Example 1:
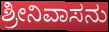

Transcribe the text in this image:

ಶ್ರೀನಿವಾಸನು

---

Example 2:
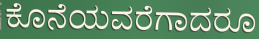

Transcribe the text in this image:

ಕೊನೆಯವರೆಗಾದರೂ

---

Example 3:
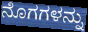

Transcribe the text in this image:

ನೊಗಗಳನ್ನು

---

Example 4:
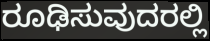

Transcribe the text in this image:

ರೂಢಿಸುವುದರಲ್ಲಿ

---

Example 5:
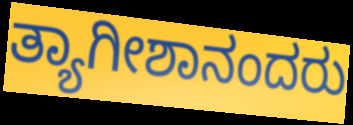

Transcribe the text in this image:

ತ್ಯಾಗೀಶಾನಂದರು